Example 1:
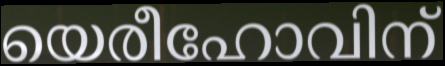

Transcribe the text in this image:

യെരീഹോവിന്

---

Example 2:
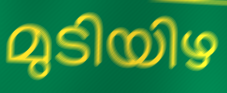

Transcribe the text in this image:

മുടിയിഴ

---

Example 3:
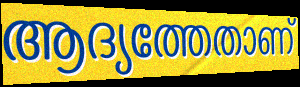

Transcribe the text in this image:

ആദ്യത്തേതാണ്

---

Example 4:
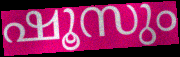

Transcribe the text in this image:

ഷൂസും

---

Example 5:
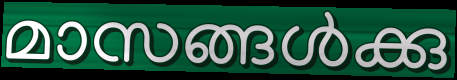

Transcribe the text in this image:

മാസങ്ങൾക്കു